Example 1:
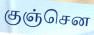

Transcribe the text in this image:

குஞ்சென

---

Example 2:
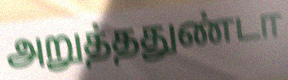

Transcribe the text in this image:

அறுத்ததுண்டா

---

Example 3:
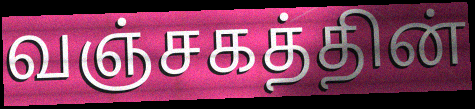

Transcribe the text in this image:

வஞ்சகத்தின்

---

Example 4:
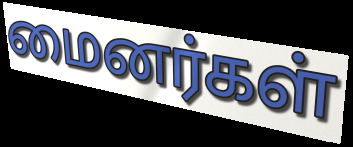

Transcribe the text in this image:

மைனர்கள்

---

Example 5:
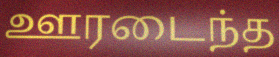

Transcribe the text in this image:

ஊரடைந்த